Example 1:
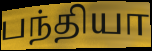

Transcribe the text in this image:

பந்தியா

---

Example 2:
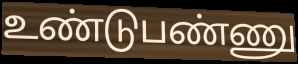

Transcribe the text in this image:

உண்டுபண்ணு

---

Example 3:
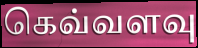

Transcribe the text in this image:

கெவ்வளவு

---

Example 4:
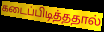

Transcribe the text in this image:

கடைப்பிடித்ததால்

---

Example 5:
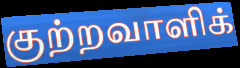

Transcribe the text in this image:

குற்றவாளிக்